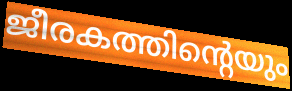
ജീരകത്തിന്റെയും